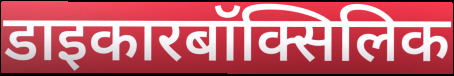
डाइकारबॉक्सिलिक